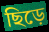
ছিড়ে